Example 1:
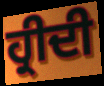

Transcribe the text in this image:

ਹ੍ਰੀਦੀ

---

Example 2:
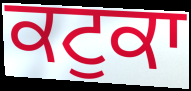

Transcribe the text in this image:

ਕਟੁਕਾ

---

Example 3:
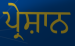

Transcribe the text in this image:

ਪ੍ਰੇਸ਼ਾਨ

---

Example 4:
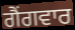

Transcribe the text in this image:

ਗੈਂਗਵਾਰ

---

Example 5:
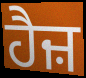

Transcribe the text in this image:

ਹੈਜ਼